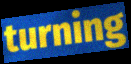
turning